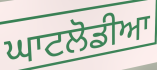
ਘਾਟਲੋਡੀਆ